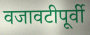
वजावटीपूर्वी